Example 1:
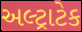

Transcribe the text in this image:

અલ્ટ્રાટેક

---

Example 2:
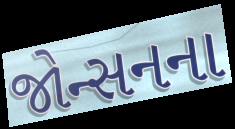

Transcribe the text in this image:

જોન્સનના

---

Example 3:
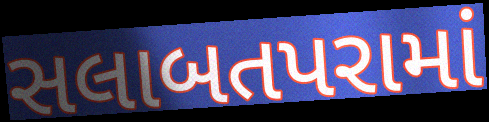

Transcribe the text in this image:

સલાબતપરામાં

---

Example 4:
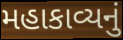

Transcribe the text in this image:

મહાકાવ્યનું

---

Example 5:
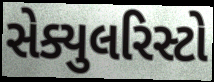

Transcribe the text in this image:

સેક્યુલરિસ્ટો